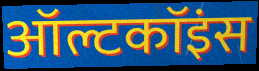
ऑल्टकॉइंस